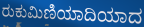
ರುಕುಮಿಣಿಯಾದಿಯಾದ